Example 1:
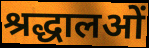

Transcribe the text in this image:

श्रद्धालओं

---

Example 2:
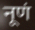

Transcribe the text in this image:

नूणं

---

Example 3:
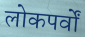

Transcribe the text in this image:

लोकपर्वों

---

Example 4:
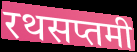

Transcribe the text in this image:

रथसप्तमी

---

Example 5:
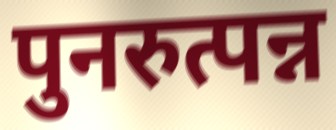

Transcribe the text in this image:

पुनरुत्पन्न